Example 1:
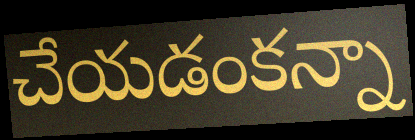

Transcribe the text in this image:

చేయడంకన్నా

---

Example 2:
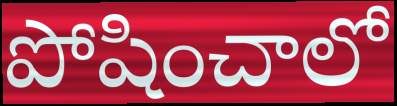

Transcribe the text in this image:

పోషించాలో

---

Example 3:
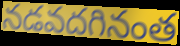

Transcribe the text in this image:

నడవదగినంత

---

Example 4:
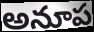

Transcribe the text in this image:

అనూప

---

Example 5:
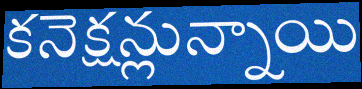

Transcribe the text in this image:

కనెక్షన్లున్నాయి